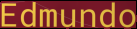
Edmundo